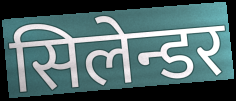
सिलेन्डर